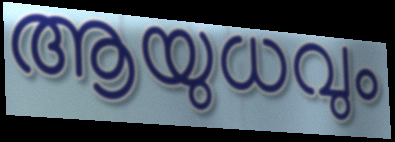
ആയുധവും